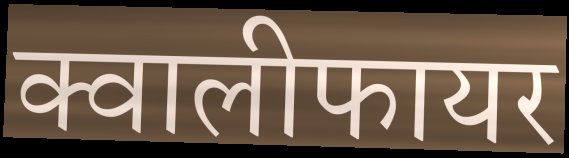
क्वालीफायर